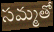
సమ్మతో